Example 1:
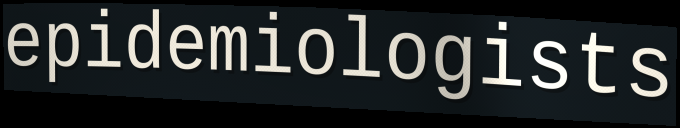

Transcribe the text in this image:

epidemiologists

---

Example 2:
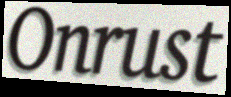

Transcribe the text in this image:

Onrust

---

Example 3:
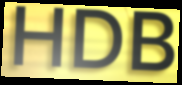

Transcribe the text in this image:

HDB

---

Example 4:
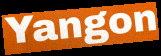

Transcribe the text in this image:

Yangon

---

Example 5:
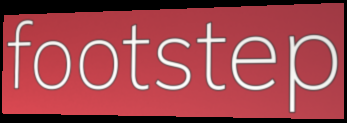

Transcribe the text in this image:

footstep